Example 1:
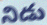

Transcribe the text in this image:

నిడు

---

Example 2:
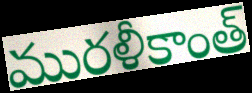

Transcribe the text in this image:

మురళీకాంత్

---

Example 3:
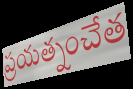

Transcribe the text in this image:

ప్రయత్నంచేత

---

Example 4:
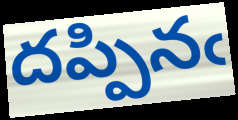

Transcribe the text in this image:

దప్పినఁ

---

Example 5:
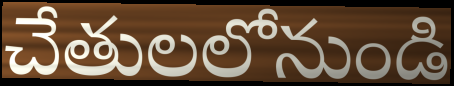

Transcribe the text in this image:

చేతులలోనుండి